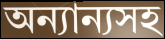
অন্যান্যসহ